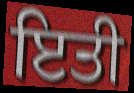
ਇਤੀ